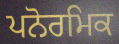
ਪਨੋਰਮਿਕ